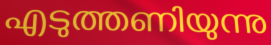
എടുത്തണിയുന്നു